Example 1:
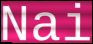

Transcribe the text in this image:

Nai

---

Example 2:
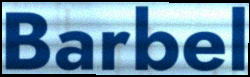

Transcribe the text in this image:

Barbel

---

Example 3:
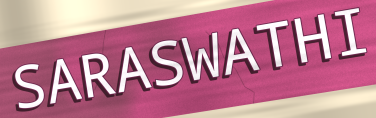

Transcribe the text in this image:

SARASWATHI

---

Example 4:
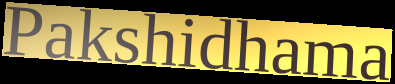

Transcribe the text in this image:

Pakshidhama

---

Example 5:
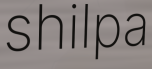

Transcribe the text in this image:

shilpa